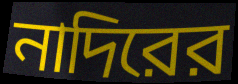
নাদিরের